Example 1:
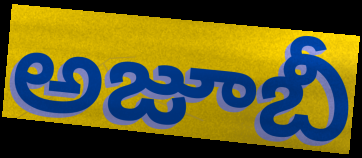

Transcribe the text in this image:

అజూబీ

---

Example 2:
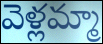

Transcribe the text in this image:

వెళ్లమ్మా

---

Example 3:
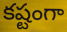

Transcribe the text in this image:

కష్టంగా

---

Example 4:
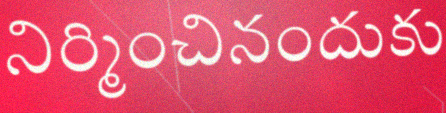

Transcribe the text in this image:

నిర్మించినందుకు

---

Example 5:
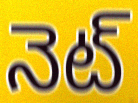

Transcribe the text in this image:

నెట్